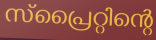
സ്പ്രൈറ്റിന്റെ